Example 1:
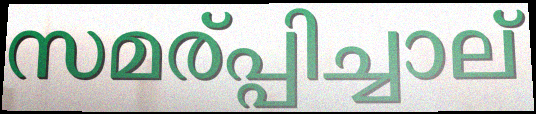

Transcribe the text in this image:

സമര്പ്പിച്ചാല്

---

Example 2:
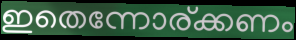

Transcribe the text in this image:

ഇതെന്നോര്ക്കണം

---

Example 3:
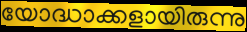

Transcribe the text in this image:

യോദ്ധാക്കളായിരുന്നു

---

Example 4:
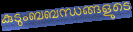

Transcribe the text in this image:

കുടുംബബന്ധങ്ങളുടെ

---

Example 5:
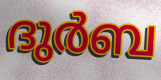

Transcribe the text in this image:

ദുർബ